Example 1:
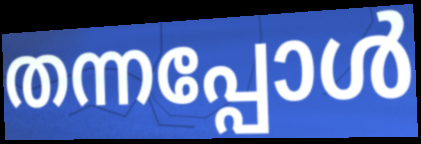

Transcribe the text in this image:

തന്നപ്പോൾ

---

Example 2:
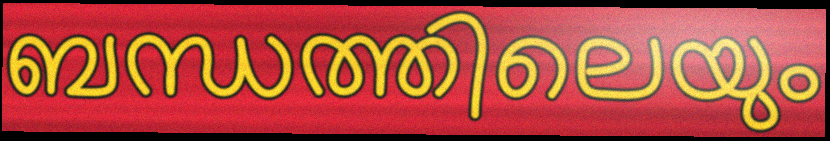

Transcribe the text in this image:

ബന്ധത്തിലെയും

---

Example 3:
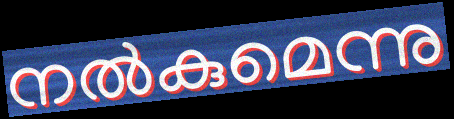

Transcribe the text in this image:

നൽകുമെന്നു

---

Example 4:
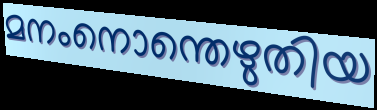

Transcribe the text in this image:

മനംനൊന്തെഴുതിയ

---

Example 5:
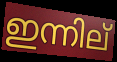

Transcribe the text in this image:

ഇന്നില്